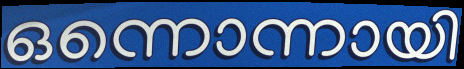
ഒന്നൊന്നായി